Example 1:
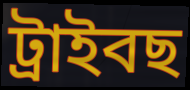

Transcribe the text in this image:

ট্ৰাইবছ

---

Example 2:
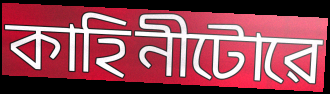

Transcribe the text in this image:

কাহিনীটোৱে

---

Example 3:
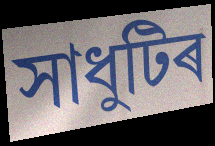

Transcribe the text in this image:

সাধুটিৰ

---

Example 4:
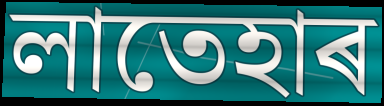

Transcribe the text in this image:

লাতেহাৰ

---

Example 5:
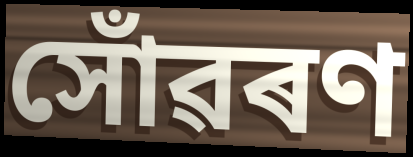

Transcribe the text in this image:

সোঁৱৰণ